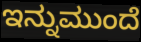
ಇನ್ನುಮುಂದೆ